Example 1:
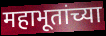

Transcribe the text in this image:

महाभूतांच्या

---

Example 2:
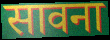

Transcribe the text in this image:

सावना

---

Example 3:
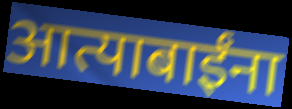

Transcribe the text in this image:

आत्याबाईंना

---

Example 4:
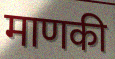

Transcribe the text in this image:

माणकी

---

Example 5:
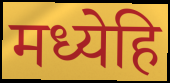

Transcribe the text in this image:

मध्येहि